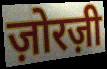
ज़ोरज़ी